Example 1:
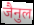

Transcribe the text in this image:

जैनुल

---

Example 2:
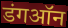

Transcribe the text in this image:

डंगऑन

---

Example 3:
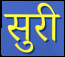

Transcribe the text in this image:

सुरी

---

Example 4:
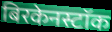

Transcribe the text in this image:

बिरकेनस्टॉक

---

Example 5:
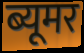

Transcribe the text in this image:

ब्यूमर